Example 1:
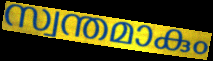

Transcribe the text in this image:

സ്വന്തമാകും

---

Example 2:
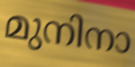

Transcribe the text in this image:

മുനിനാ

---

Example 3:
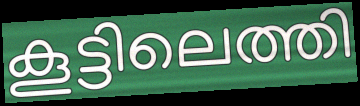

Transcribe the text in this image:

കൂട്ടിലെത്തി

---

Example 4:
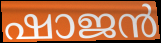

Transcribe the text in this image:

ഷാജൻ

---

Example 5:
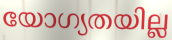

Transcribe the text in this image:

യോഗ്യതയില്ല